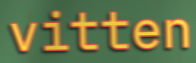
vitten